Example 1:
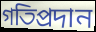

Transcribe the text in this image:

গতিপ্রদান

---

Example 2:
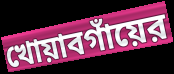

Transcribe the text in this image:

খোয়াবগাঁয়ের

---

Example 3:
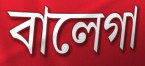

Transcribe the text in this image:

বালেগা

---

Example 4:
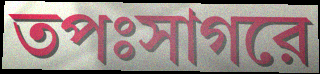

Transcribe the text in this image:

তপঃসাগরে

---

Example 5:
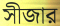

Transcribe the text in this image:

সীজার